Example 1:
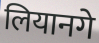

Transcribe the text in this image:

लियानगे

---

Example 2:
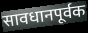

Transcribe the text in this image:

सावधानपूर्वक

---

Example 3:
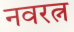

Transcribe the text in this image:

नवरत्न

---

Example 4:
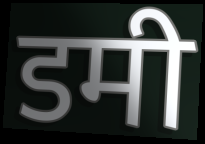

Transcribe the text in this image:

डमी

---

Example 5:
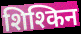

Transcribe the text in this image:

शिश्किन